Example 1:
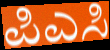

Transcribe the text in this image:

ಪಿಎಸಿ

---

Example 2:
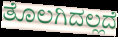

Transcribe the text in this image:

ತೊಲಗಿದಲ್ಲದೆ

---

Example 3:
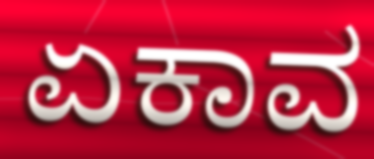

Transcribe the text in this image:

ಏಕಾವ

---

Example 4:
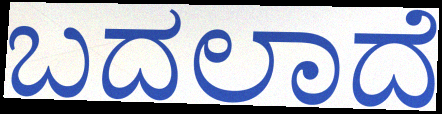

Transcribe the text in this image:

ಬದಲಾದೆ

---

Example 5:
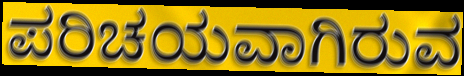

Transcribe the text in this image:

ಪರಿಚಯವಾಗಿರುವ